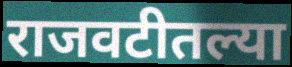
राजवटीतल्या